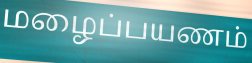
மழைப்பயணம்